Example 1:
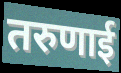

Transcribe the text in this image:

तरुणाई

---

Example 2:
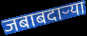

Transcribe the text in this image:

जबाबदाऱ्या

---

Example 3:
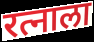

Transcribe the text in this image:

रत्नाला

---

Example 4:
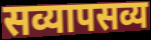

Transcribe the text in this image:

सव्यापसव्य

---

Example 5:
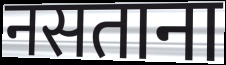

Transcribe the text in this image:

नसताना